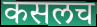
कसलच